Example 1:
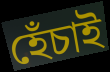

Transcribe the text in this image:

হেঁচাই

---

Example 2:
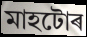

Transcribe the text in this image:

মাহটোৰ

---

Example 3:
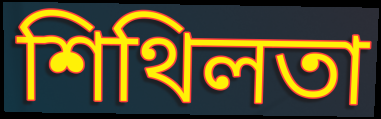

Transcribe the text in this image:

শিথিলতা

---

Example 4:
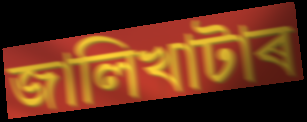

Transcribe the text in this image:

জালিখাটাৰ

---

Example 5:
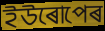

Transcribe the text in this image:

ইউৰোপেৰ